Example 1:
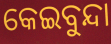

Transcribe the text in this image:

କେଇବୁନ୍ଦା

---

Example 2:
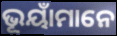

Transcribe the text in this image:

ଭୂୟାଁମାନେ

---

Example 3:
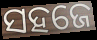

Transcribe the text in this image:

ସହଜେ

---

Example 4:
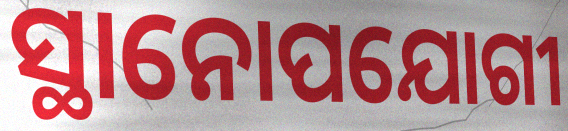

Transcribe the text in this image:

ସ୍ଥାନୋପଯୋଗୀ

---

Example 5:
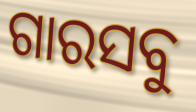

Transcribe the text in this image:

ଗାରସବୁ